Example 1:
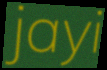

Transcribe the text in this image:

jayi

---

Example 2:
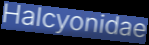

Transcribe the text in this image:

Halcyonidae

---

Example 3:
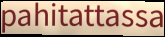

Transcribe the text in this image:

pahitattassa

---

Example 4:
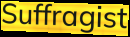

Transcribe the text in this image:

Suffragist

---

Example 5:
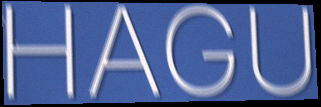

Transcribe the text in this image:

HAGU